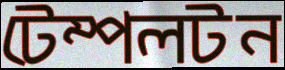
টেম্পলটন